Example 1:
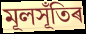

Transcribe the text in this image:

মূলসূঁতিৰ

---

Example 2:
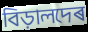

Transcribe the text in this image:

বিড়ালদেৰ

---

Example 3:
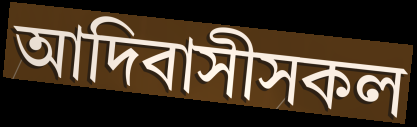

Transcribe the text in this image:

আদিবাসীসকল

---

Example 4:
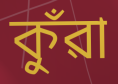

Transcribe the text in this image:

কুঁৱা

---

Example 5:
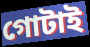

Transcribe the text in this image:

গোটাই